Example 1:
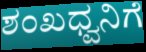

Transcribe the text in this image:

ಶಂಖಧ್ವನಿಗೆ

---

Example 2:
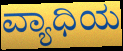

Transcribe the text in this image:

ವ್ಯಾಧಿಯ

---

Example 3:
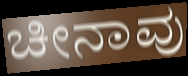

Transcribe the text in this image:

ಚೀನಾವು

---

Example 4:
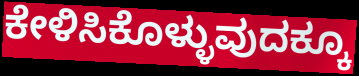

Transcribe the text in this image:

ಕೇಳಿಸಿಕೊಳ್ಳುವುದಕ್ಕೂ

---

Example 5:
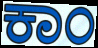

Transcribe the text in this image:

ಕಾಂ